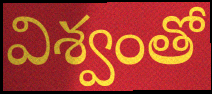
విశ్వంతో